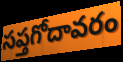
సప్తగోదావరం